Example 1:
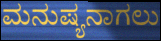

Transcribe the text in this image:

ಮನುಷ್ಯನಾಗಲು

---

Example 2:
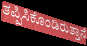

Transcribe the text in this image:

ತಪ್ಪಿಸಿಕೊಂಡಿರುತ್ತಾನೆ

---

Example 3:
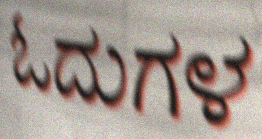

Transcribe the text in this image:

ಓದುಗಳ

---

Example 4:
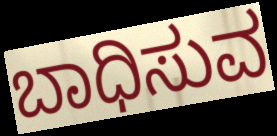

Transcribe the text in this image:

ಬಾಧಿಸುವ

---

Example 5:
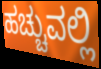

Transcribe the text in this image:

ಹಚ್ಚುವಲ್ಲಿ